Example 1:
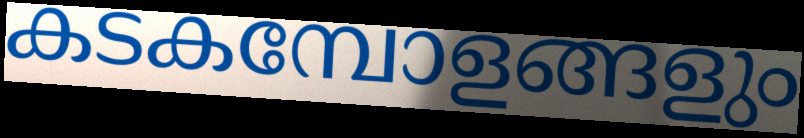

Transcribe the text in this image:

കടകമ്പോളങ്ങളും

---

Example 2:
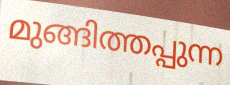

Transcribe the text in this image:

മുങ്ങിത്തപ്പുന്ന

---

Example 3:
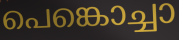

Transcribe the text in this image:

പെങ്കൊച്ചാ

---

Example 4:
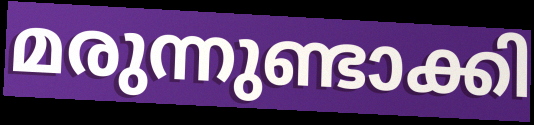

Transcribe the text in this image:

മരുന്നുണ്ടാക്കി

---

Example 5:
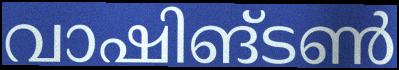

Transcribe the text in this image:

വാഷിങ്ടൺ